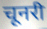
चूनरी